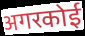
अगरकोई